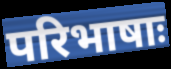
परिभाषाः